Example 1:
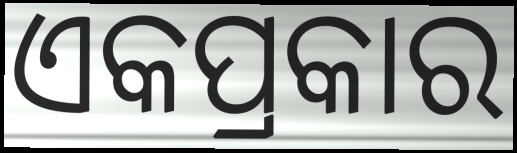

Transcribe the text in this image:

ଏକପ୍ରକାର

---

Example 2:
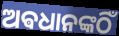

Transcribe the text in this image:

ଅଵଧାନଙ୍କଠିଁ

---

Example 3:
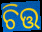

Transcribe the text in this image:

ଚିତ୍ତ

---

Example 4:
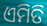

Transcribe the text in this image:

ଏମିତି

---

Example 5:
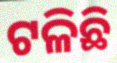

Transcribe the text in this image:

ଟଳିଛି